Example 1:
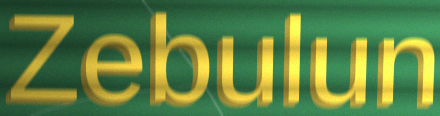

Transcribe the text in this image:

Zebulun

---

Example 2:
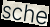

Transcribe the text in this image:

sche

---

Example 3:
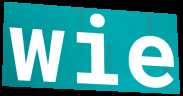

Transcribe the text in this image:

wie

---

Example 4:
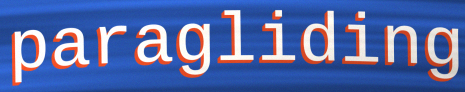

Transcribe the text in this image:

paragliding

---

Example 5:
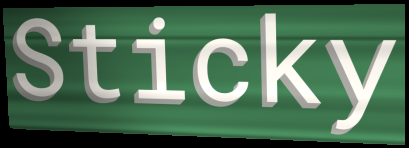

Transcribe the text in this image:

Sticky